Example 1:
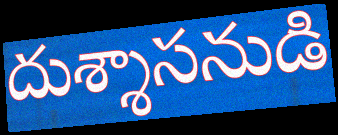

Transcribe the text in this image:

దుశ్శాసనుడి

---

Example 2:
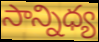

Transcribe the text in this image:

సాన్నిధ్య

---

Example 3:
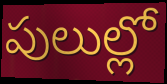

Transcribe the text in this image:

పులుల్లో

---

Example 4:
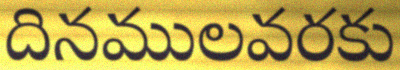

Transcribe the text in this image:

దినములవరకు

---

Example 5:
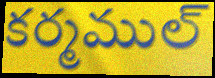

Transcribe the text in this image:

కర్మముల్